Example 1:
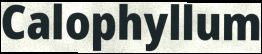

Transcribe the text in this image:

Calophyllum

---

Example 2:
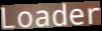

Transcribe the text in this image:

Loader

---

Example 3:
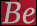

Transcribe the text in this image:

Be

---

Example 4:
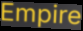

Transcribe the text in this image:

Empire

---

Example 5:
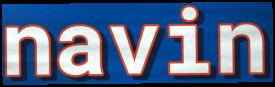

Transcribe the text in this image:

navin